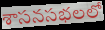
శాసనసభలలో